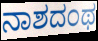
ನಾಶದಂಥ